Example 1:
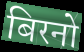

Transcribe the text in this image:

बिरनो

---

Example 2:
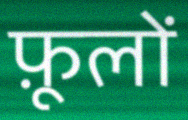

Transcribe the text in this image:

फ़ूलों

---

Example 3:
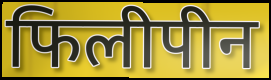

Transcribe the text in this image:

फिलीपीन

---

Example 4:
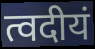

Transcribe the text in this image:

त्वदीयं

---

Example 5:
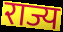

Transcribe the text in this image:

राज्य